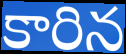
కారిన